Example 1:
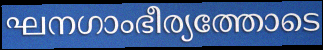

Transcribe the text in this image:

ഘനഗാംഭീര്യത്തോടെ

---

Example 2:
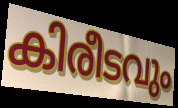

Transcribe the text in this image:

കിരീടവും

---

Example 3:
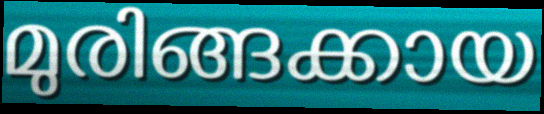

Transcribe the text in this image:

മുരിങ്ങക്കായ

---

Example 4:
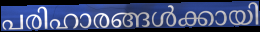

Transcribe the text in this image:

പരിഹാരങ്ങൾക്കായി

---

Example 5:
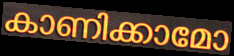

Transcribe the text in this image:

കാണിക്കാമോ